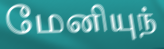
மேனியுந்